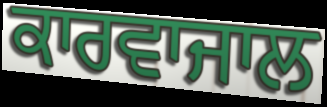
ਕਾਰਵਾਜਾਲ